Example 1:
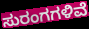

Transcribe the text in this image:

ಸುರಂಗಗಳಿವೆ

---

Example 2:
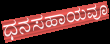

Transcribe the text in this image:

ಧನಸಹಾಯವೂ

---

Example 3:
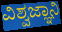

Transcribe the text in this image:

ವಿಶ್ವಜ್ಞಾನಿ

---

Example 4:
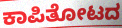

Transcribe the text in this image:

ಕಾಪಿತೋಟದ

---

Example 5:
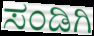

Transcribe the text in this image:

ಸಂಡಿಗಿ